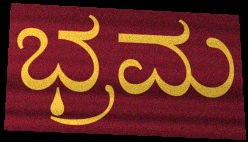
ಭ್ರಮ